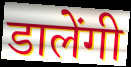
डालेंगी